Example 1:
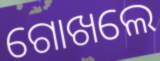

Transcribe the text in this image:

ଗୋଖଲେ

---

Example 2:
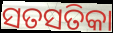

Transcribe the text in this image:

ସତସତିକା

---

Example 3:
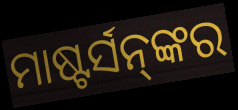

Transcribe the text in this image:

ମାଷ୍ଟର୍ସନ୍‌ଙ୍କର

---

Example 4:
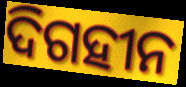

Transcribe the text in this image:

ଦିଗହୀନ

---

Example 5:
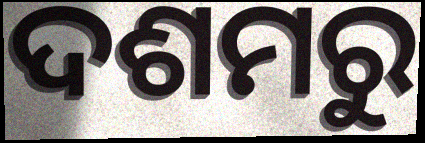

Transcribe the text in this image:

ଦଶମରୁ